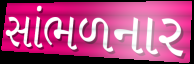
સાંભળનાર